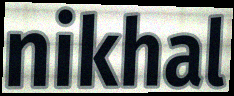
nikhal